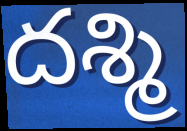
దశ్మి